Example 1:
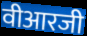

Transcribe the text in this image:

वीआरजी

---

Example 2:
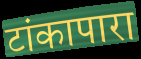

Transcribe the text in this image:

टांकापारा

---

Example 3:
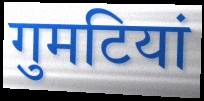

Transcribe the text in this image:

गुमटियां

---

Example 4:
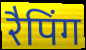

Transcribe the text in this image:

रैपिंग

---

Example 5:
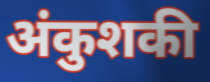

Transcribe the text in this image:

अंकुशकी